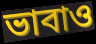
ভাবাও